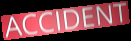
ACCIDENT